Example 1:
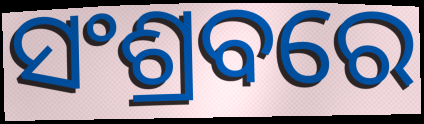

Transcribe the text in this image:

ସଂଶ୍ରବରେ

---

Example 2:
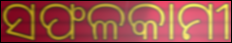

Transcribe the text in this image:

ସଫଳକାମୀ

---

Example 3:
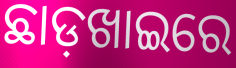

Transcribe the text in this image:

ଛାଡ଼ଖାଇରେ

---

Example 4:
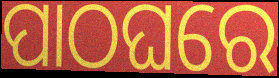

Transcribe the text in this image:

ପାଠଘରେ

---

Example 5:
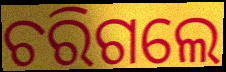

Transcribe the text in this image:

ଚରିଗଲେ